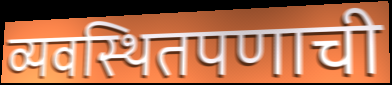
व्यवस्थितपणाची